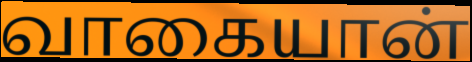
வாகையான்